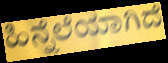
ಹಿನ್ನೆಲೆಯಾಗಿದೆ